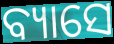
ବ୍ୟାସେ